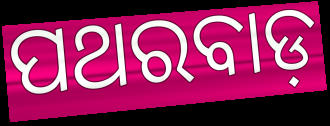
ପଥରବାଡ଼